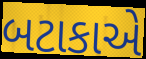
બટાકાએ